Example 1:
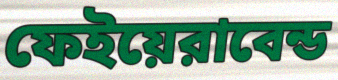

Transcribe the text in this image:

ফেইয়েরাবেন্ড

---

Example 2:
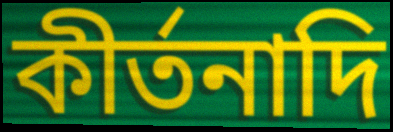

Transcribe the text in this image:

কীর্তনাদি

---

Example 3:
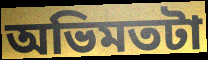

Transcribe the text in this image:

অভিমতটা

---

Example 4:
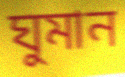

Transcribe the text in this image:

ঘুমান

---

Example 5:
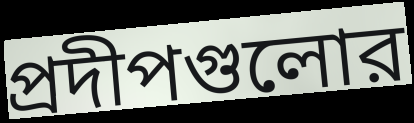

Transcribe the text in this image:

প্রদীপগুলোর